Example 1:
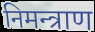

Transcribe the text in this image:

निमन्त्राण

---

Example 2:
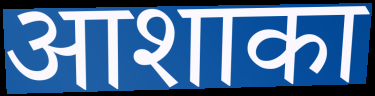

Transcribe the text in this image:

आशाका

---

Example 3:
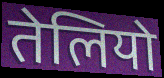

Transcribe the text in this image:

तेलियो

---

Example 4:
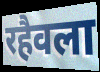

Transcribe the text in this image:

रहैवला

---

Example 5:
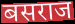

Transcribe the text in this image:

बसराज